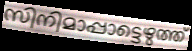
സിനിമാപ്പാട്ടെഴുത്ത്